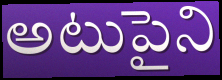
అటుపైని